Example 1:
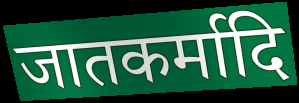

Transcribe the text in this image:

जातकर्मादि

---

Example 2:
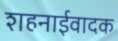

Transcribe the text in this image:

शहनाईवादक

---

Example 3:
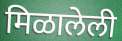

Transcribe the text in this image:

मिळालेली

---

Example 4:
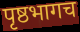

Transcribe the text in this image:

पृष्ठभागच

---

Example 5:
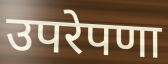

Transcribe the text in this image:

उपरेपणा